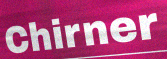
Chirner